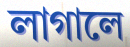
লাগালে